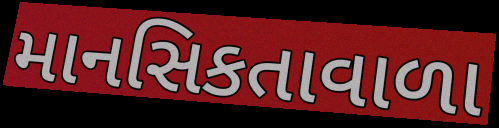
માનસિકતાવાળા